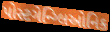
પોસ્ટગેન્ગ્લિઓનિક